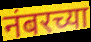
नंबरच्या